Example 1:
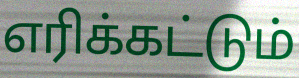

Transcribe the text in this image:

எரிக்கட்டும்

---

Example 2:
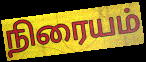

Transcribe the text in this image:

நிரையம்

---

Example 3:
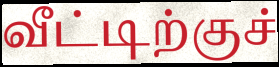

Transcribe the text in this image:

வீட்டிற்குச்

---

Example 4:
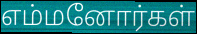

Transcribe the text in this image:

எம்மனோர்கள்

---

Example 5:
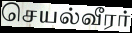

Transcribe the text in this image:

செயல்வீரர்